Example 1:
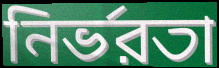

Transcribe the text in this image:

নির্ভরতা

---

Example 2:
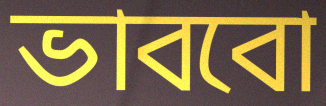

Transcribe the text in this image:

ভাববো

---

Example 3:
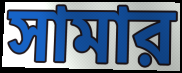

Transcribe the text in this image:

সামার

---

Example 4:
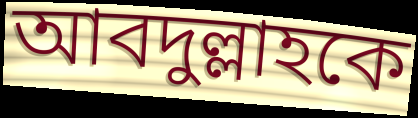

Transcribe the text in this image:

আবদুল্লাহকে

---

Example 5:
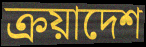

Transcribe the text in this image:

ক্রয়াদেশ